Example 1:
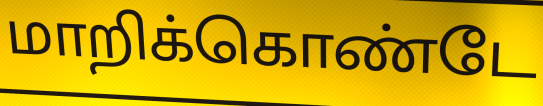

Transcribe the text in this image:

மாறிக்கொண்டே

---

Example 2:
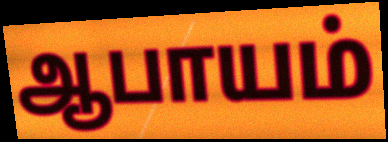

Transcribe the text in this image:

ஆபாயம்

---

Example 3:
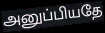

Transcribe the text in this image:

அனுப்பியதே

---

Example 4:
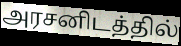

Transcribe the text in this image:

அரசனிடத்தில்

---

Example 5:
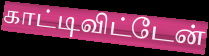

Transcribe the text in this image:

காட்டிவிட்டேன்